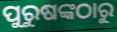
ପୁରୁଷଙ୍କଠାରୁ